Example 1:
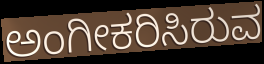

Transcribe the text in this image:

ಅಂಗೀಕರಿಸಿರುವ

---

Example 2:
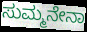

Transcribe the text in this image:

ಸುಮ್ಮನೇನಾ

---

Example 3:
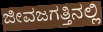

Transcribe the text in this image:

ಜೀವಜಗತ್ತಿನಲ್ಲಿ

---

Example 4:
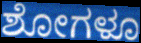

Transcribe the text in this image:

ಶೋಗಳೂ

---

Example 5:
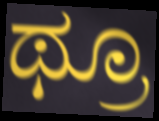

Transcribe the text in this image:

ಥ್ರೂ